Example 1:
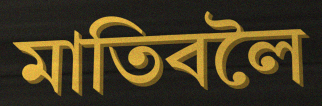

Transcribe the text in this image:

মাতিবলৈ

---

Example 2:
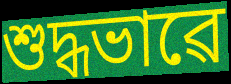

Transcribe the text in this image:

শুদ্ধভাৱে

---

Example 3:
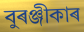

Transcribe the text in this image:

বুৰঞ্জীকাৰ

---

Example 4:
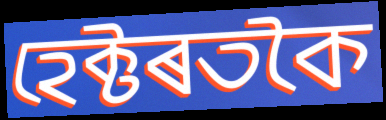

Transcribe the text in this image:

হেক্টৰতকৈ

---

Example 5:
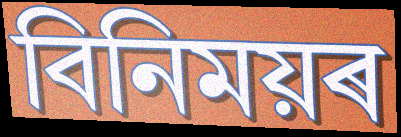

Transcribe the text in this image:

বিনিময়ৰ